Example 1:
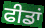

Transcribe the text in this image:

ਫੀਡਾਂ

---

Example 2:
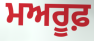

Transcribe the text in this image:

ਮਅਰੂਫ਼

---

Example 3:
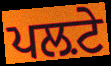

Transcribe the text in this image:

ਪਲ਼ਟੇ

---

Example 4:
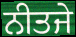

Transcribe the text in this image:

ਨੀਤਜੇ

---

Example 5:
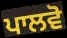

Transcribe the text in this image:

ਪਾਲਵੋ